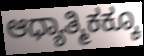
ಆಧ್ಯಾತ್ಮಿಕಕ್ಕೂ